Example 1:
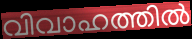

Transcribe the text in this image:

വിവാഹത്തിൽ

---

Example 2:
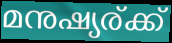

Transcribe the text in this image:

മനുഷ്യര്ക്ക്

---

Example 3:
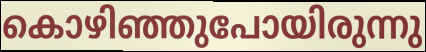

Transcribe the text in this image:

കൊഴിഞ്ഞുപോയിരുന്നു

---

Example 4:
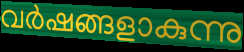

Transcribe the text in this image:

വർഷങ്ങളാകുന്നു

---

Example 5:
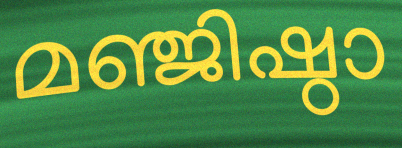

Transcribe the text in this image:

മഞ്ജിഷ്ഠാ